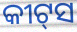
କୀଟ୍‌ସ